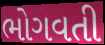
ભોગવતી